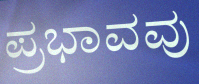
ಪ್ರಭಾವವು